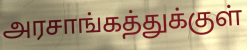
அரசாங்கத்துக்குள்